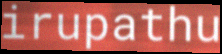
irupathu